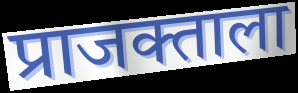
प्राजक्ताला